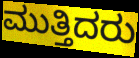
ಮುತ್ತಿದರು